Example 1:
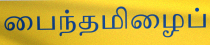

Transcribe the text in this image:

பைந்தமிழைப்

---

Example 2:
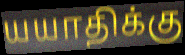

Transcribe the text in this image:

யயாதிக்கு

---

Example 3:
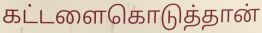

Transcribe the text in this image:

கட்டளைகொடுத்தான்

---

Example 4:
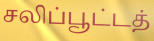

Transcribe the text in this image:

சலிப்பூட்டத்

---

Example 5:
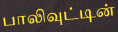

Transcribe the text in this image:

பாலிவுட்டின்